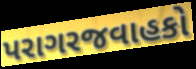
પરાગરજવાહકો